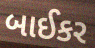
બાઈકર